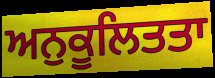
ਅਨੁਕੂਲਿਤਤਾ